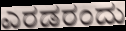
ಎರಡರಂದು